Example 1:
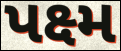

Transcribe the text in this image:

પક્ષ્મ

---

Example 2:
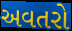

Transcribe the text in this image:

અવતરો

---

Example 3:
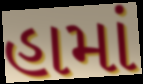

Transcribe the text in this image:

હામાં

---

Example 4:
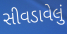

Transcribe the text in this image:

સીવડાવેલું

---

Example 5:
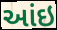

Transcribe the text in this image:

આંઇ